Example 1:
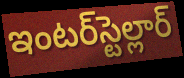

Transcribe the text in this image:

ఇంటర్‌స్టెల్లార్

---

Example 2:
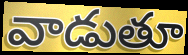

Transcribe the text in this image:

వాడుతూ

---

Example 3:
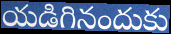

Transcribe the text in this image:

యడిగినందుకు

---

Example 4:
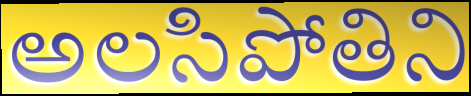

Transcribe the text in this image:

అలసిపోతిని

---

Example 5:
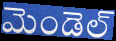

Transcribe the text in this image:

మెండెల్